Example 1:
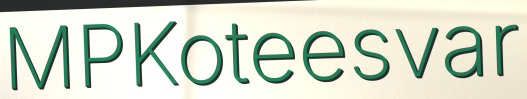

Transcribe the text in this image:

MPKoteesvar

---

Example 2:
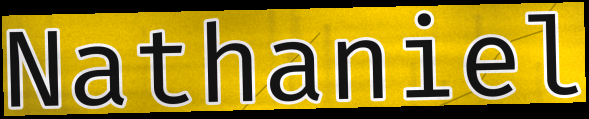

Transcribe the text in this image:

Nathaniel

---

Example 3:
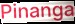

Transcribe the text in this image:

Pinanga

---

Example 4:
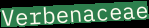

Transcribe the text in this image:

Verbenaceae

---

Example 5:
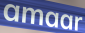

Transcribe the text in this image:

amaar